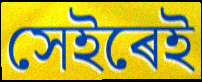
সেইৰেই